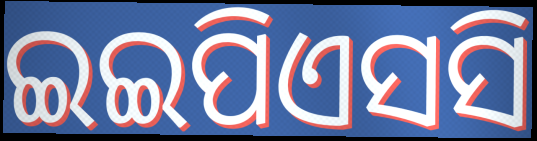
ଇଇପିଏସସି